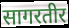
सागरतीर